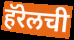
हॅरेलची